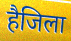
हैजिला